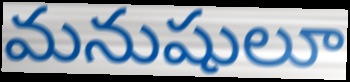
మనుషులూ